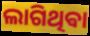
ଲାଗିଥିଵା